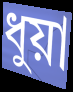
ধুয়া